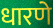
धारणे